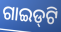
ଗାଇଡ୍‌ଟି